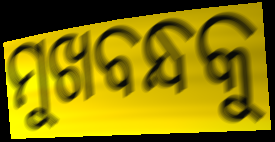
ମୁଖବନ୍ଧକୁ